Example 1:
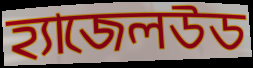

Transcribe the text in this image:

হ্যাজেলউড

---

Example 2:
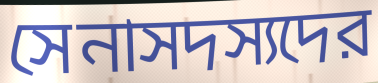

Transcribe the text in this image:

সেনাসদস্যদের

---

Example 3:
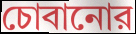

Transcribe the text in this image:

চোবানোর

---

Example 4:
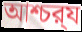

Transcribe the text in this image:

আশ্চর্‍য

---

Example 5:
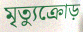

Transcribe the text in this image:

মৃত্যুক্রোড়